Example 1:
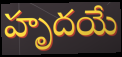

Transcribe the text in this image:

హృదయే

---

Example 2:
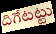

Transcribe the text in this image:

దిగేటట్టు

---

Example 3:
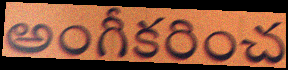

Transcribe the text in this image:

అంగీకరించ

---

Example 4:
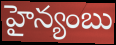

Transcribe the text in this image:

హైన్యంబు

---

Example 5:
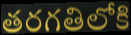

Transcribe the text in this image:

తరగతిలోకి